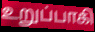
உறுப்பாகி